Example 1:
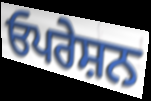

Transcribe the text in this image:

ਓਪਰੇਸ਼ਨ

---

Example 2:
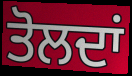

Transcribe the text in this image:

ਤੋਲਦਾਂ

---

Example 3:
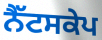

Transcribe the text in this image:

ਨੈੱਟਸਕੇਪ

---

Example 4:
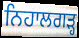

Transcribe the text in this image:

ਨਿਹਾਲਗੜ੍ਹ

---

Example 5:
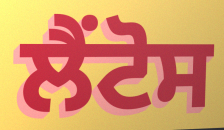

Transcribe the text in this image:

ਲੈਂਟੋਸ